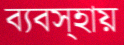
ব্যবস্হায়